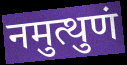
नमुत्थुणं